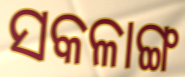
ସକଳାଙ୍ଗ